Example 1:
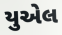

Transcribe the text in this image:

યુએલ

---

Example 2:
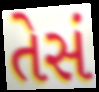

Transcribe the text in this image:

તેસં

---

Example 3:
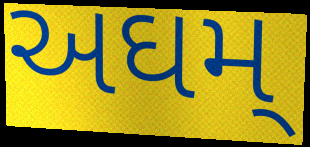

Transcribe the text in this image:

અઘમ્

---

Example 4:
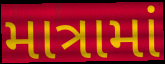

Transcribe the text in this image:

માત્રામાં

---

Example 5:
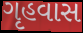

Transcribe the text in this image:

ગૃહવાસ